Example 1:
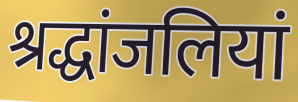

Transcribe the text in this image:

श्रद्धांजलियां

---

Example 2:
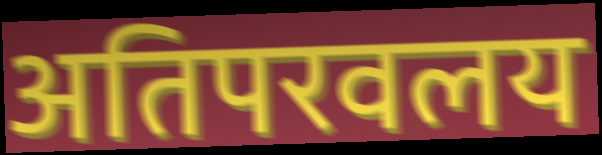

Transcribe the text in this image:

अतिपरवलय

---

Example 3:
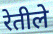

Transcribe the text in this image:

रेतीले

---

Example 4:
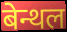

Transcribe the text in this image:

बेन्थल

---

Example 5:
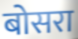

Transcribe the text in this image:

बोसरा